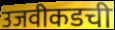
उजवीकडची